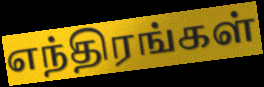
எந்திரங்கள்